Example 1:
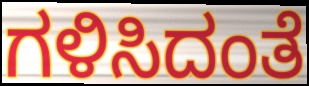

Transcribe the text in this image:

ಗಳಿಸಿದಂತೆ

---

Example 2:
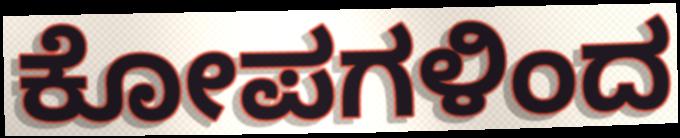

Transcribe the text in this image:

ಕೋಪಗಳಿಂದ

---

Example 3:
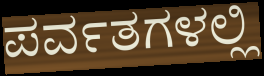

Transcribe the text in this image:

ಪರ್ವತಗಳಲ್ಲಿ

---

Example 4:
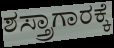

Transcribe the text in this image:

ಶಸ್ತ್ರಾಗಾರಕ್ಕೆ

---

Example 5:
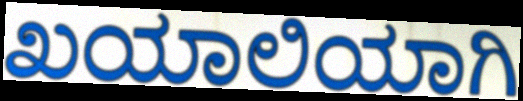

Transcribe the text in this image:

ಖಯಾಲಿಯಾಗಿ